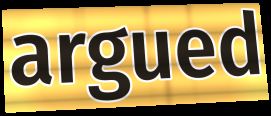
argued